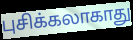
புசிக்கலாகாது